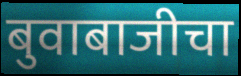
बुवाबाजीचा